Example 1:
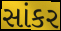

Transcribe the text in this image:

સાંકર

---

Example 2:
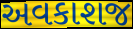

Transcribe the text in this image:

અવકાશજ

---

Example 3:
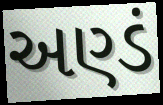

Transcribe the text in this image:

અણ્ડં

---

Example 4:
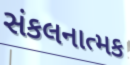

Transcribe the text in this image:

સંકલનાત્મક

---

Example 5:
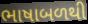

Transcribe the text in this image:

ભાષાબળથી